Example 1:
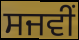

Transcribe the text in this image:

ਸਜਵੀਂ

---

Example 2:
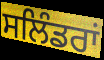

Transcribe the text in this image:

ਸਲਿੰਡਰਾਂ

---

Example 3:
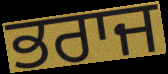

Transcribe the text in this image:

ਭਰਾਜ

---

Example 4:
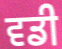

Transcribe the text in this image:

ਵਡੀ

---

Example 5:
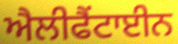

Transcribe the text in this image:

ਐਲੀਫੈਂਟਾਈਨ